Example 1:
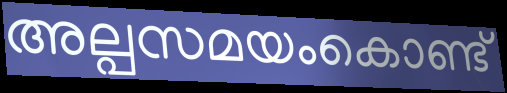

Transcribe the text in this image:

അല്പസമയംകൊണ്ട്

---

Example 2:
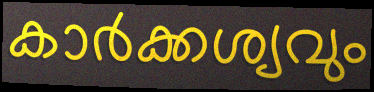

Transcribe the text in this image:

കാർക്കശ്യവും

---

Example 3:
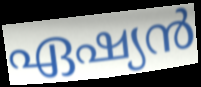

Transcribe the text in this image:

ഏഷ്യൻ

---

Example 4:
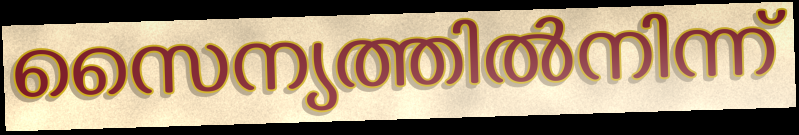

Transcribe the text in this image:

സൈന്യത്തിൽനിന്ന്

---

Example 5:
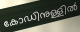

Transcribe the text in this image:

കോഡിനുള്ളിൽ